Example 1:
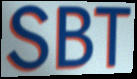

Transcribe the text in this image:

SBT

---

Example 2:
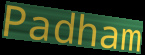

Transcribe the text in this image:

Padham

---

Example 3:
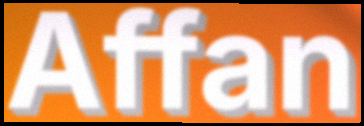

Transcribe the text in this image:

Affan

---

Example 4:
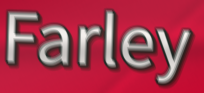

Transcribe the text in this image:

Farley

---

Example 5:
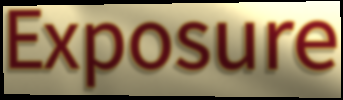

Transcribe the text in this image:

Exposure